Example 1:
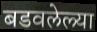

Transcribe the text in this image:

बडवलेल्या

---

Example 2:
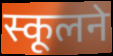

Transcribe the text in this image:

स्कूलने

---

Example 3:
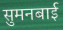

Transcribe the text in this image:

सुमनबाई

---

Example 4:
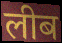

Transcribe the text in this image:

लीब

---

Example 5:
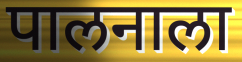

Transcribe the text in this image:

पालनाला